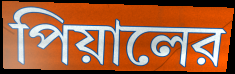
পিয়ালের